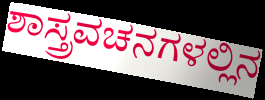
ಶಾಸ್ತ್ರವಚನಗಳಲ್ಲಿನ